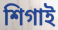
শিগাই